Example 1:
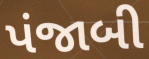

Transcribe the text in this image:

પંજાબી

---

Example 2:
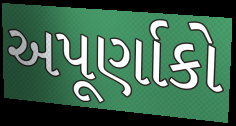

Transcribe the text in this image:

અપૂર્ણાકો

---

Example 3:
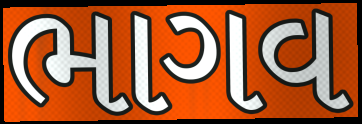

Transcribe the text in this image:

ભાગવ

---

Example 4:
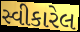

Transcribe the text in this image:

સ્વીકારેલ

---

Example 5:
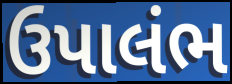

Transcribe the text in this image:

ઉપાલંભ